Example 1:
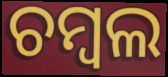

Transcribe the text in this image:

ଚମ୍ବଲ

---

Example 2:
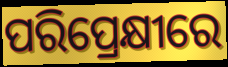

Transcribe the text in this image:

ପରିପ୍ରେକ୍ଷୀରେ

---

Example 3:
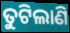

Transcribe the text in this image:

ତୁଟିଲାଣି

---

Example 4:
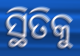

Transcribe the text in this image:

ସ୍ଥିତିକୁ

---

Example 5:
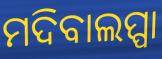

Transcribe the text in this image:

ମଦିବାଲପ୍ପା